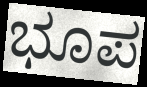
ಭೂಪ